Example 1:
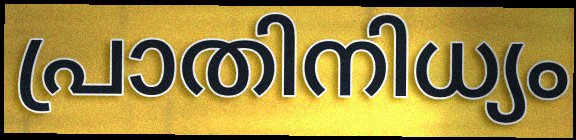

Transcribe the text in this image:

പ്രാതിനിധ്യം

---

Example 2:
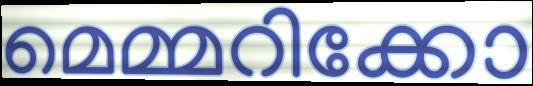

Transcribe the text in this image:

മെമ്മറിക്കോ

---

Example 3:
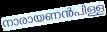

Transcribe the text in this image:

നാരായണൻപിള്ള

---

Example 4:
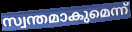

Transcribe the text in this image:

സ്വന്തമാകുമെന്ന്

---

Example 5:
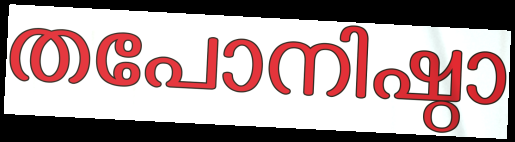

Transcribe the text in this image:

തപോനിഷ്ഠാ